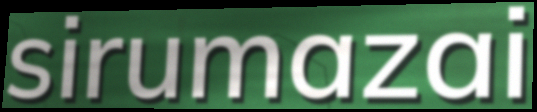
sirumazai